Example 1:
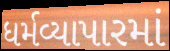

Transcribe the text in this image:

ધર્મવ્યાપારમાં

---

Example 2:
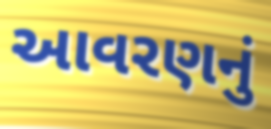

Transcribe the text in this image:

આવરણનું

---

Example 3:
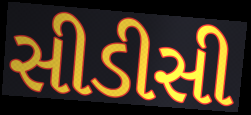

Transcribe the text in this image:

સીડીસી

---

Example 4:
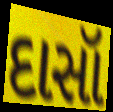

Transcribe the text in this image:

દાસૉ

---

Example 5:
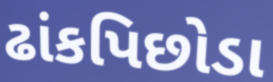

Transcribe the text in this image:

ઢાંકપિછોડા